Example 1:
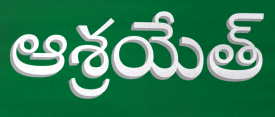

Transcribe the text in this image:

ఆశ్రయేత్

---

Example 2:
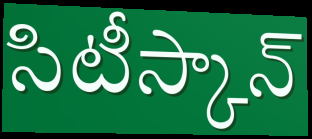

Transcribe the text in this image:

సిటీస్కాన్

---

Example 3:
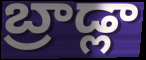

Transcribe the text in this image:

బ్రాడ్లా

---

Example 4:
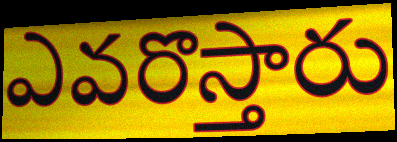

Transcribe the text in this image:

ఎవరొస్తారు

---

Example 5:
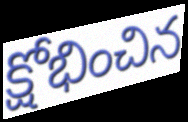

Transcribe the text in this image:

క్షోభించిన